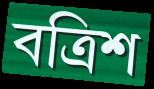
বত্ৰিশ